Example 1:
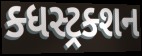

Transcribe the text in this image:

ક્ધસ્ટ્રક્શન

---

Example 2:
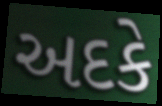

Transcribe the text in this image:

અદકે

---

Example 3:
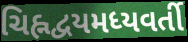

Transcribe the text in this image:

ચિહ્નદ્વયમધ્યવર્તી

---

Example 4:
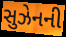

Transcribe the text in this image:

સુઝેનની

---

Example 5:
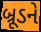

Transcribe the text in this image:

બ્રૂડને